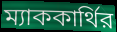
ম্যাককার্থির